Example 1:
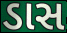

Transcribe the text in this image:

ડાસ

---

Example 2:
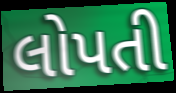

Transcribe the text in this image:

લોપતી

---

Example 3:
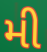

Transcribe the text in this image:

મી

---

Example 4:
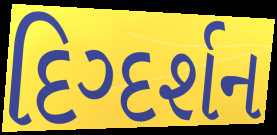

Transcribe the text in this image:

દિગ્દર્શન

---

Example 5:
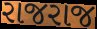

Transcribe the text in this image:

રાજરાજ